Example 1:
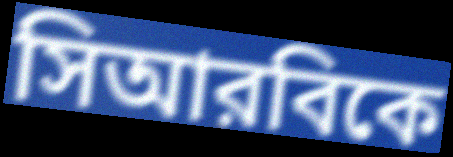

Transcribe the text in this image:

সিআরবিকে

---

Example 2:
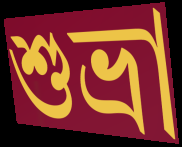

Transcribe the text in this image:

শুভ্রা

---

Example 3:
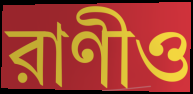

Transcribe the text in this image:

রাণীও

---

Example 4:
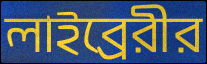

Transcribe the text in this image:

লাইব্রেরীর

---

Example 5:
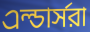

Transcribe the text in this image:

এল্ডার্সরা